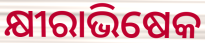
କ୍ଷୀରାଭିଷେକ